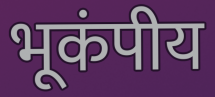
भूकंपीय